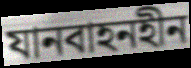
যানবাহনহীন